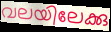
വലയിലേക്കു